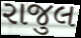
રાજુલ